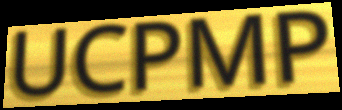
UCPMP